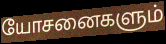
யோசனைகளும்